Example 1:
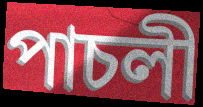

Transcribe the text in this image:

পাচলী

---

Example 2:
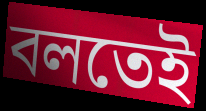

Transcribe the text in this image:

বলতেই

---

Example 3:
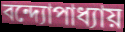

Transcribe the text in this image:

বন্দ্যোপাধ্যায়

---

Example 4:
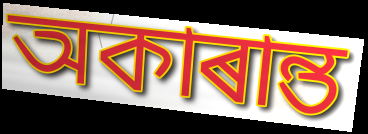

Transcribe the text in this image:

অকাৰান্ত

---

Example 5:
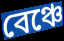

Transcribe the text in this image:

বেঞ্চে